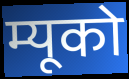
म्यूको